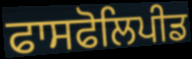
ਫਾਸਫੋਲਿਪੀਡ